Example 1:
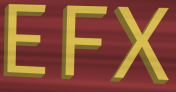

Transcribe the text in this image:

EFX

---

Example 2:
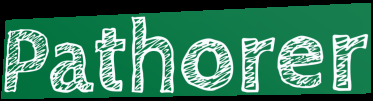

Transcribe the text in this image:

Pathorer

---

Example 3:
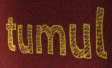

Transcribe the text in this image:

tumul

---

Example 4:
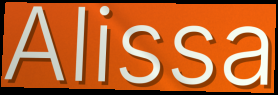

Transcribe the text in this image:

Alissa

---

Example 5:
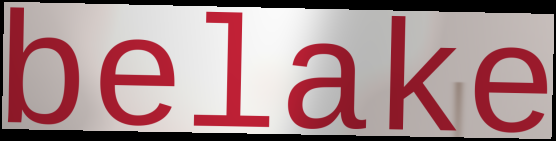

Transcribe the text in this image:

belake